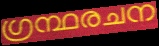
ഗ്രന്ഥരചന